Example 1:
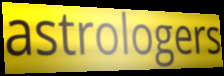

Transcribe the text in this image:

astrologers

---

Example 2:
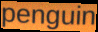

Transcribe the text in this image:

penguin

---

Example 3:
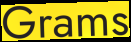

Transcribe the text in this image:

Grams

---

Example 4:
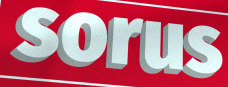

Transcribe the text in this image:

sorus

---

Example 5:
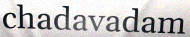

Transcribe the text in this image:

chadavadam